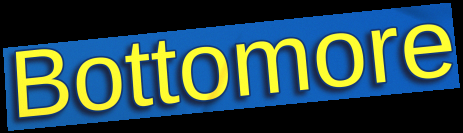
Bottomore